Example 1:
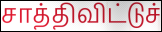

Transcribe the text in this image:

சாத்திவிட்டுச்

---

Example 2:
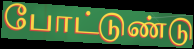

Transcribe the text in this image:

போட்டுண்டு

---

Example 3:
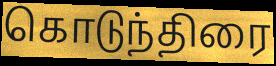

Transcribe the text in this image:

கொடுந்திரை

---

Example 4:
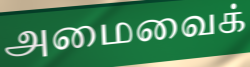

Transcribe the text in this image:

அமைவைக்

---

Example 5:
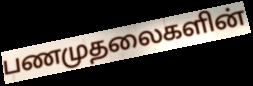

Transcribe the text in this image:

பணமுதலைகளின்